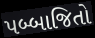
પબ્બાજિતો